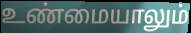
உண்மையாலும்